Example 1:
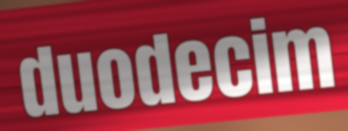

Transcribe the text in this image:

duodecim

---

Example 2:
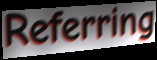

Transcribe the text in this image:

Referring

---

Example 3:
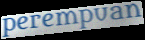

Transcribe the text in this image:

perempuan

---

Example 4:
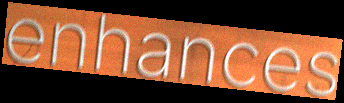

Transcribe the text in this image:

enhances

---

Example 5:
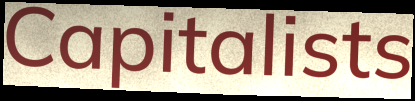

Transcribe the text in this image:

Capitalists